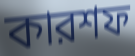
কারশফ